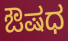
ಔಷಧ